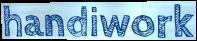
handiwork